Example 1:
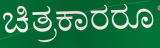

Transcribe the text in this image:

ಚಿತ್ರಕಾರರೂ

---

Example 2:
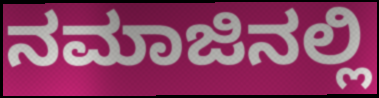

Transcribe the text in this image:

ನಮಾಜಿನಲ್ಲಿ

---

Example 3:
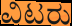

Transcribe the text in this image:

ವಿಟರು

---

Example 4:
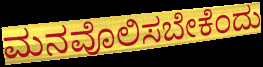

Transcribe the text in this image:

ಮನವೊಲಿಸಬೇಕೆಂದು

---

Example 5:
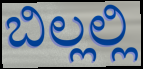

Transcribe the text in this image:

ಬಿಲ್ಲಲ್ಲಿ